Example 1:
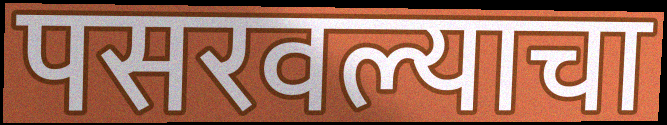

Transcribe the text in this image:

पसरवल्याचा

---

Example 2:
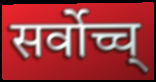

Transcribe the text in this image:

सर्वोच्च्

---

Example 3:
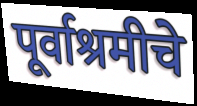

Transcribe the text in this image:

पूर्वाश्रमीचे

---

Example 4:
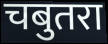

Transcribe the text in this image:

चबुतरा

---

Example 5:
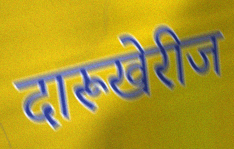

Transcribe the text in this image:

दारूखेरीज